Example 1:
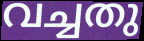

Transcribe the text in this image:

വച്ചതു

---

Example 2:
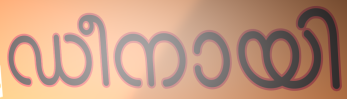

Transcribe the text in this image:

ഡീനായി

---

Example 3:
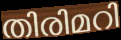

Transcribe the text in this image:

തിരിമറി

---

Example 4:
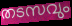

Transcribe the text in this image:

തടസവും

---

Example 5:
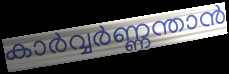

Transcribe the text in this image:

കാർവ്വർണ്ണന്താൻ